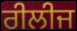
ਰੀਲੀਜ